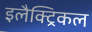
इलैक्ट्रिकल